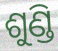
ଶୁଣ୍ଡି